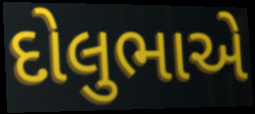
દોલુભાએ